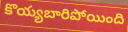
కొయ్యబారిపోయింది